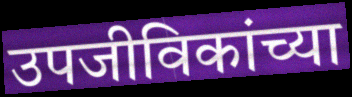
उपजीविकांच्या